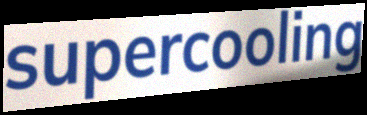
supercooling